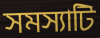
সমস্যাটি